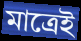
মাত্ৰেই